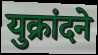
युक्रांदने